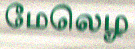
மேலெழ